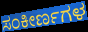
ಸಂಕೀರ್ಣಗಳ